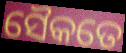
ସୈକତେ